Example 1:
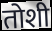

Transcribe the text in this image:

तोशी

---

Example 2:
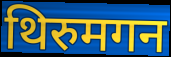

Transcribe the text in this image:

थिरुमगन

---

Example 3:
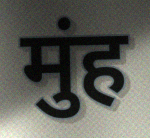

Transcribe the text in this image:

मुंह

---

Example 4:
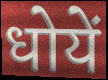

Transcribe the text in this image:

धोयें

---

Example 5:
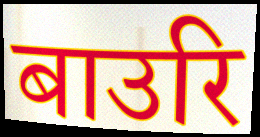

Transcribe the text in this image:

बाउरि